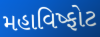
મહાવિષ્ફોટ